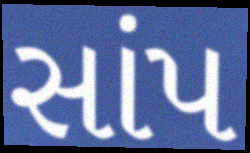
સાંપ